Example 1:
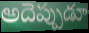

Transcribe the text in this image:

అదెప్పుడూ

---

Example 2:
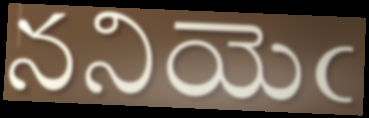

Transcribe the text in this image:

ననియెఁ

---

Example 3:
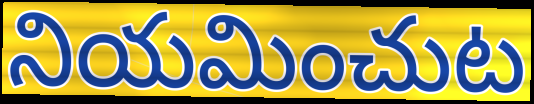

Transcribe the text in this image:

నియమించుట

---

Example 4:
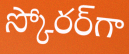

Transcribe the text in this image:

స్కోరర్‌గా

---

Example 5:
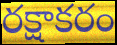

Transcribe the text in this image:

రక్షాకరం